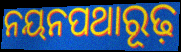
ନୟନପଥାରୂଢ଼